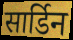
सार्डिन